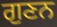
ਗੁਣਨ